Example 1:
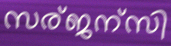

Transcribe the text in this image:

സര്ജന്സി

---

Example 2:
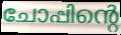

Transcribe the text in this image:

ചോപ്പിന്റെ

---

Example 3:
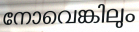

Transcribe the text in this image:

നോവെങ്കിലും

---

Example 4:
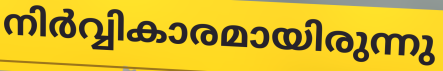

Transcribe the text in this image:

നിർവ്വികാരമായിരുന്നു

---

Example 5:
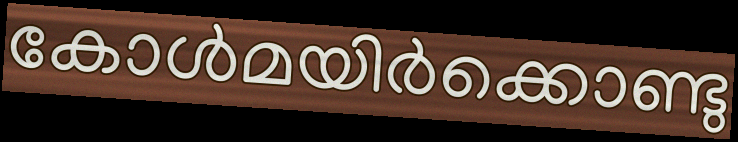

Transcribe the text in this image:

കോൾമയിർക്കൊണ്ടു